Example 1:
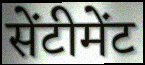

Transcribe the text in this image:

सेंटीमेंट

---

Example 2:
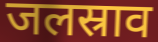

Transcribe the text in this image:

जलस्राव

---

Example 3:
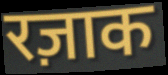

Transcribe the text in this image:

रज़ाक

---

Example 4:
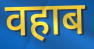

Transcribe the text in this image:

वहाब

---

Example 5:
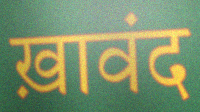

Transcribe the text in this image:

ख़ावंद